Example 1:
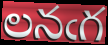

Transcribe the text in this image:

లనఁగ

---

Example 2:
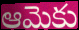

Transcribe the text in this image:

ఆమెకు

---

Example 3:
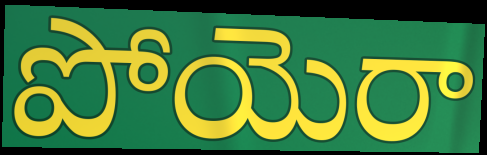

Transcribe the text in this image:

పోయెరా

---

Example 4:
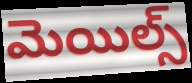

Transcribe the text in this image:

మెయిల్స్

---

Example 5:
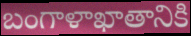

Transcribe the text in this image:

బంగాళాఖాతానికి